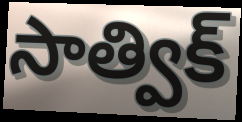
సాత్విక్